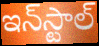
ఇన్‌స్టాల్